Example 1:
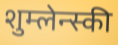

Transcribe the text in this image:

शुम्लेन्स्की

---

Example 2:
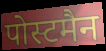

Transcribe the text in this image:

पोस्टमैन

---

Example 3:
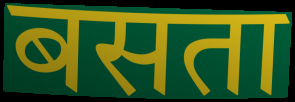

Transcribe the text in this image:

बसता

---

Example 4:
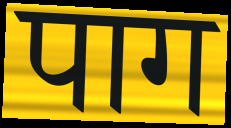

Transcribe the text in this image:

पाग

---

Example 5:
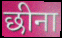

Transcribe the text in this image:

छीना